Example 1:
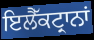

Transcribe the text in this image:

ਇਲੈੱਕਟ੍ਰਾਨਾਂ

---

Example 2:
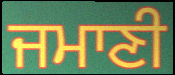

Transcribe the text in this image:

ਜਮਾਣੀ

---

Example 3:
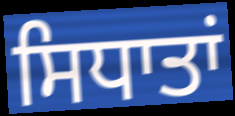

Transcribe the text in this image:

ਸਿਧਾਤਾਂ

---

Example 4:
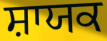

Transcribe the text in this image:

ਸ਼ਾਯਕ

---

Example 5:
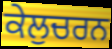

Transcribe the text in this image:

ਕੇਲੁਚਰਨ